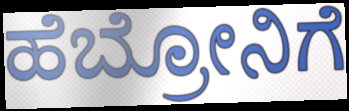
ಹೆಬ್ರೋನಿಗೆ